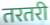
तरतरी